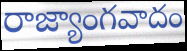
రాజ్యాంగవాదం